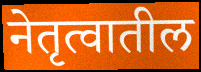
नेतृत्वातील